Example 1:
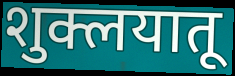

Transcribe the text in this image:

शुक्लयातू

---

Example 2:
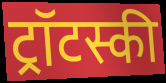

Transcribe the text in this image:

ट्रॉटस्की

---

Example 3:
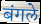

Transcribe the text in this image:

बंगले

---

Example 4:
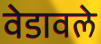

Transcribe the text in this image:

वेडावले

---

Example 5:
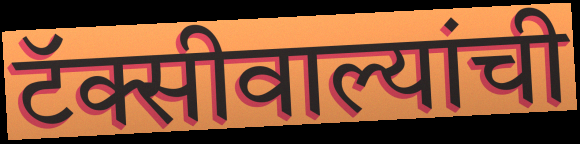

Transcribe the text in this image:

टॅक्सीवाल्यांची